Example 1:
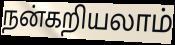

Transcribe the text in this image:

நன்கறியலாம்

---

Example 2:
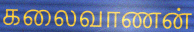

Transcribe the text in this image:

கலைவாணன்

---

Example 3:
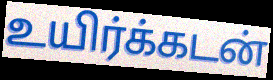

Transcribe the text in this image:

உயிர்க்கடன்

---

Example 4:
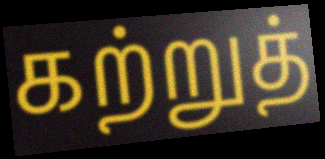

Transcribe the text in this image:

கற்றுத்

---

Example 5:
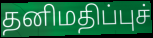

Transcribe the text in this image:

தனிமதிப்புச்